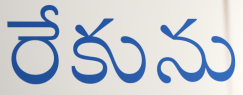
రేకును